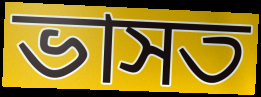
ভাসত